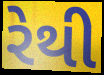
રેથી